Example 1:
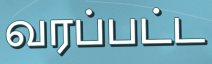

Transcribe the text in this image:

வரப்பட்ட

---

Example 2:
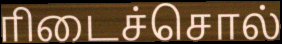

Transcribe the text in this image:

ரிடைச்சொல்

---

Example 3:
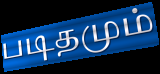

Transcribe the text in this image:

படிதமும்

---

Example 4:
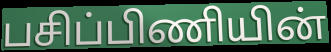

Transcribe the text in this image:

பசிப்பிணியின்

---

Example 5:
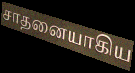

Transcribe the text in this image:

சாதனையாகிய